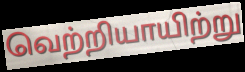
வெற்றியாயிற்று